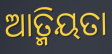
ଆତ୍ମିୟତା